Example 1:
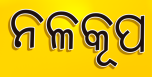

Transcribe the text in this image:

ନଳକୂପ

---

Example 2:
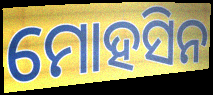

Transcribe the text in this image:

ମୋହସିନ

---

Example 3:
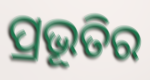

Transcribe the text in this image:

ପ୍ରଭୂତିର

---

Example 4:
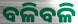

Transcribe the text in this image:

ବଳିବଳି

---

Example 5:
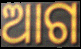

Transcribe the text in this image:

ଆଗ